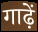
गाढ़ें